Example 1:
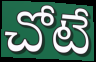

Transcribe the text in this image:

చోటే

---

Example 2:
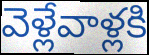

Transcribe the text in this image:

వెళ్లేవాళ్లకి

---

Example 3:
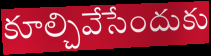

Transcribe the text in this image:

కూల్చివేసేందుకు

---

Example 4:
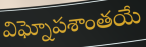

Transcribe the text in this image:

విఘ్నోపశాంతయే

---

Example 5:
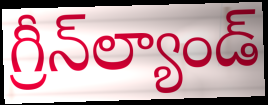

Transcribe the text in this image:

గ్రీన్‌ల్యాండ్